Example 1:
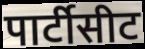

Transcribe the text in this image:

पार्टीसीट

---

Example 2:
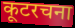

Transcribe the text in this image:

कूटरचना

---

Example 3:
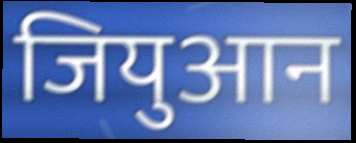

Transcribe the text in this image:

जियुआन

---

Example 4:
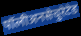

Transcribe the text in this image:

पॉलीअनसेचुरेटेड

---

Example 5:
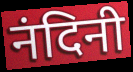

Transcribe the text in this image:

नंदिनी